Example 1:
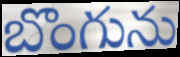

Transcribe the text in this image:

బొంగును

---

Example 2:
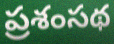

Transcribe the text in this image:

ప్రశంసథ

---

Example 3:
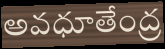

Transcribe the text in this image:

అవధూతేంద్ర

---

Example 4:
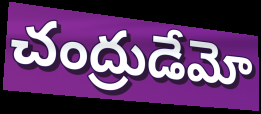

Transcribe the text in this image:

చంద్రుడేమో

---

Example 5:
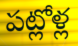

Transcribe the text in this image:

పట్లోళ్ల